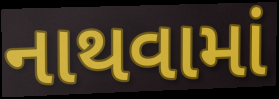
નાથવામાં